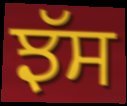
ਝੱਸ